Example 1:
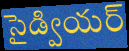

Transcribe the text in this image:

సైడ్వియర్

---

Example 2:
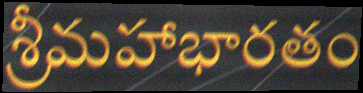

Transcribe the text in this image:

శ్రీమహాభారతం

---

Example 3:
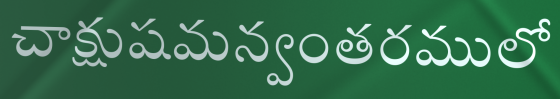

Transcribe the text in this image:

చాక్షుషమన్వంతరములో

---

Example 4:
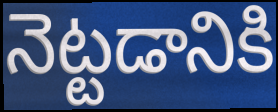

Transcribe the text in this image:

నెట్టడానికి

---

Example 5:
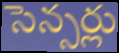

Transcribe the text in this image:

సెన్సర్లు